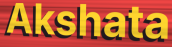
Akshata